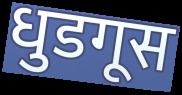
धुडगूस